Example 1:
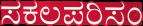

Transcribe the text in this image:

ಸಕಲಪರಿಸಂ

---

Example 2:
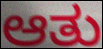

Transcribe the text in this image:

ಆತು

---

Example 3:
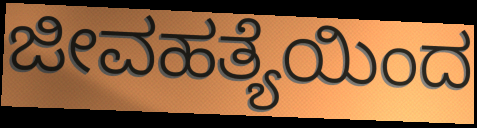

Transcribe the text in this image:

ಜೀವಹತ್ಯೆಯಿಂದ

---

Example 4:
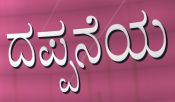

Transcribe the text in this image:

ದಪ್ಪನೆಯ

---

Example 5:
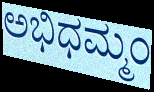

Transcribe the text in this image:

ಅಭಿಧಮ್ಮಂ